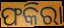
ଫକିରା